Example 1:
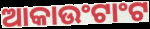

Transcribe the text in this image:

ଆକାଉଂଟାଂଟ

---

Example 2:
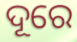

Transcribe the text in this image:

ଦୂରେ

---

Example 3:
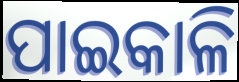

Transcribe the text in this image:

ପାଇକାଳି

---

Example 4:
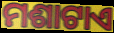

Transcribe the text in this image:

ମଶାଟାଏ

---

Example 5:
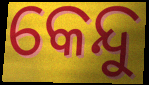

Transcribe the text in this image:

କେନ୍ଦୁ